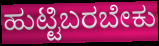
ಹುಟ್ಟಿಬರಬೇಕು